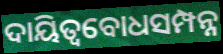
ଦାୟିତ୍ୱବୋଧସମ୍ପନ୍ନ